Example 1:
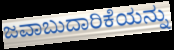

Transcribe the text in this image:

ಜವಾಬುದಾರಿಕೆಯನ್ನು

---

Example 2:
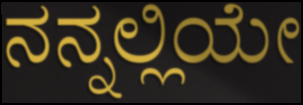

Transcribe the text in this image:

ನನ್ನಲ್ಲಿಯೇ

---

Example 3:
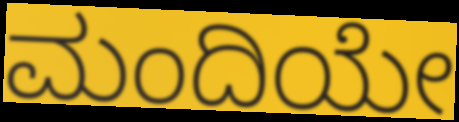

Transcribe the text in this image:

ಮಂದಿಯೇ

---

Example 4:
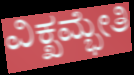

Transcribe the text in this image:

ವಿಕ್ಖಮ್ಭೇತಿ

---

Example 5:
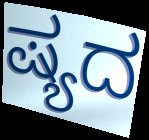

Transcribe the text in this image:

ಷ್ಯದ